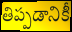
తిప్పడానికీ